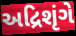
અદ્રિશૃંગે